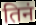
तिनं